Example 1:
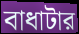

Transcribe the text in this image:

বাধাটার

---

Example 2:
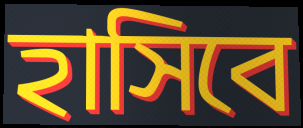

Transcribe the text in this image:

হাসিবে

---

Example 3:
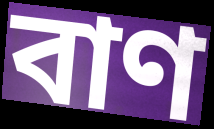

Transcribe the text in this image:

বাণ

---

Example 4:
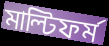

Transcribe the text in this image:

মাল্টিফর্ম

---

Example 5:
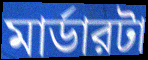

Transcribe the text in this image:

মার্ডারটা